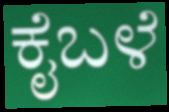
ಕೈಬಳೆ